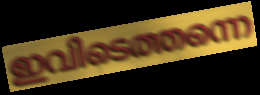
ഇവിടെത്തന്നെ